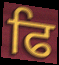
ਫਿ